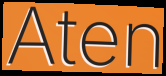
Aten